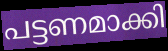
പട്ടണമാക്കി